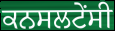
ਕਨਸਲਟੇਂਸੀ